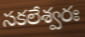
సకలేశ్వరః